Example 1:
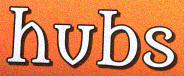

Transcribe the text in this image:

hubs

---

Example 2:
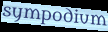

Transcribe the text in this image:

sympodium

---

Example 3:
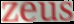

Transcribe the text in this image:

zeus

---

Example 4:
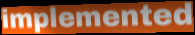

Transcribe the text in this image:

implemented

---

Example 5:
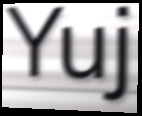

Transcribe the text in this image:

Yuj